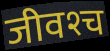
जीवश्च